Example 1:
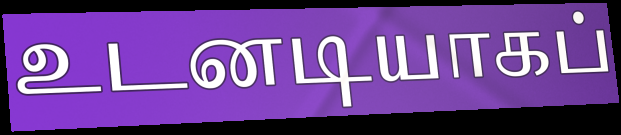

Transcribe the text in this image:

உடனடியாகப்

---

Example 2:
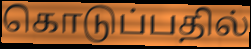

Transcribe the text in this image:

கொடுப்பதில்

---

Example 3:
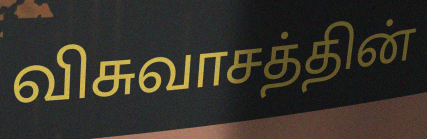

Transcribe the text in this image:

விசுவாசத்தின்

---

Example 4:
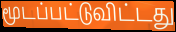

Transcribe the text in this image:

மூடப்பட்டுவிட்டது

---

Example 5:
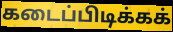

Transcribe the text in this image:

கடைப்பிடிக்கக்